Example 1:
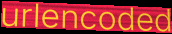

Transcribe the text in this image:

urlencoded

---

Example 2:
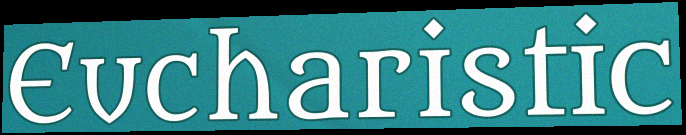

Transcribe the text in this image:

Eucharistic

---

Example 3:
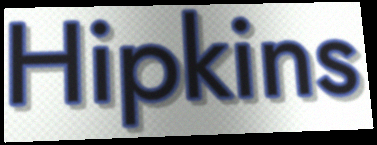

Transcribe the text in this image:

Hipkins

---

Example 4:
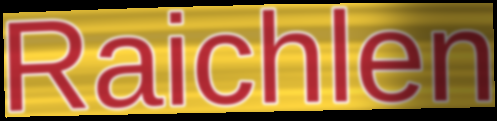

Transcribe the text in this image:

Raichlen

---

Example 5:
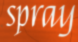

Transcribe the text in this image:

spray